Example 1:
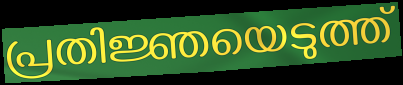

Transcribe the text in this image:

പ്രതിജ്ഞയെടുത്ത്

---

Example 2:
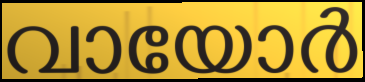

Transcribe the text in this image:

വായോർ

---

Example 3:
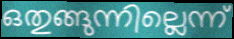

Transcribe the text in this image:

ഒതുങ്ങുന്നില്ലെന്ന്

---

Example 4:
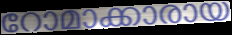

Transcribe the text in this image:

റോമാക്കാരായ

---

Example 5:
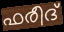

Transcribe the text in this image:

ഫരീദ്